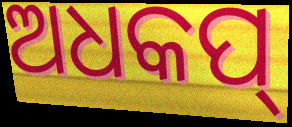
ଅଧକପ୍